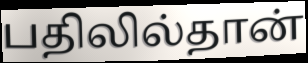
பதிலில்தான்